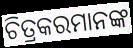
ଚିତ୍ରକରମାନଙ୍କ